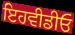
ਇਹਵੀਡੀਓ